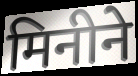
मिनीने